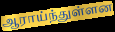
ஆராய்ந்துள்ளன